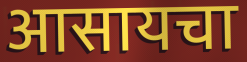
आसायचा